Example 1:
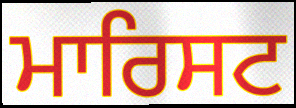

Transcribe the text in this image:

ਮਾਰਿਸਟ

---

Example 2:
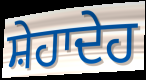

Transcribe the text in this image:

ਸ਼ੇਹਾਦੇਹ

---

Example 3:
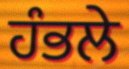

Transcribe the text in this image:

ਹੰਭਲੇ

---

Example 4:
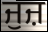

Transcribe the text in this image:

ਜੁਜ਼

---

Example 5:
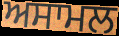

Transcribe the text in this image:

ਅਸਾਮਲ